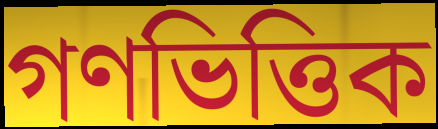
গণভিত্তিক